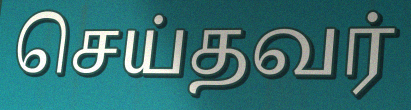
செய்தவர்